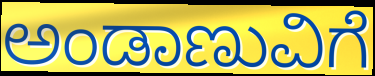
ಅಂಡಾಣುವಿಗೆ